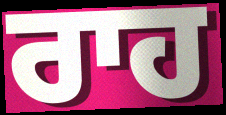
ਰਾਹ